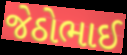
જેઠોભાઈ